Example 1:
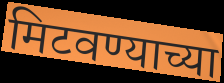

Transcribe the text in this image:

मिटवण्याच्या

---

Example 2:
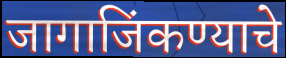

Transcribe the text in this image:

जागाजिंकण्याचे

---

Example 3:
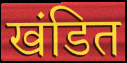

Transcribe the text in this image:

खंडित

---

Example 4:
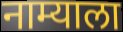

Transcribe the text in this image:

नाम्याला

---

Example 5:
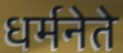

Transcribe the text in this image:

धर्मनेते